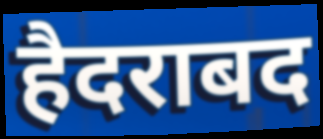
हैदराबद